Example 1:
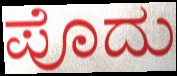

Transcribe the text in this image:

ಪೊದು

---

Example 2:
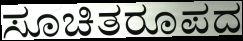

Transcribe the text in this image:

ಸೂಚಿತರೂಪದ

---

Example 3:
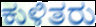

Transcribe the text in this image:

ಕುಳಿತರು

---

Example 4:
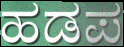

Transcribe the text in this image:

ಹಡಪ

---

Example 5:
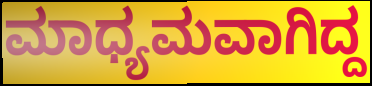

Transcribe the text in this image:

ಮಾಧ್ಯಮವಾಗಿದ್ದ